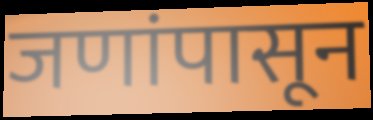
जणांपासून